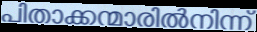
പിതാക്കന്മാരിൽനിന്ന്